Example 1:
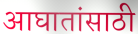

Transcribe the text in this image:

आघातांसाठी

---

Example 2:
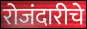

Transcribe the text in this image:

रोजंदारीचे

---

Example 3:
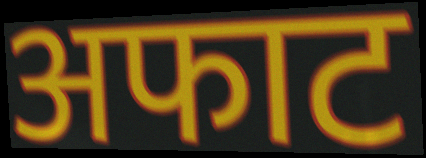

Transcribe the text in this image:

अफाट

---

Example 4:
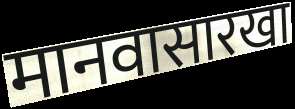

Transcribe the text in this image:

मानवासारखा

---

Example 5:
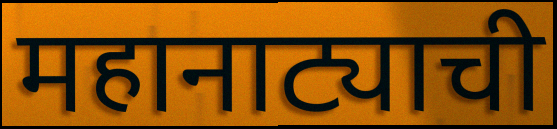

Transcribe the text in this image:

महानाट्याची